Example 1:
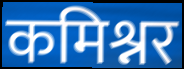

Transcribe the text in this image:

कमिश्नर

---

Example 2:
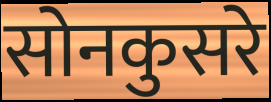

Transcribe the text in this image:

सोनकुसरे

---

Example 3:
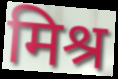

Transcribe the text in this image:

मिश्र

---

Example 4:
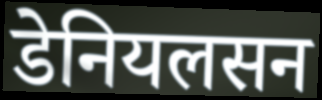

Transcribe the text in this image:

डेनियलसन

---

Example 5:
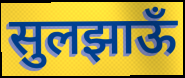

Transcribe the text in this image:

सुलझाऊँ